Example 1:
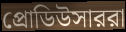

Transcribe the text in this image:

প্রোডিউসাররা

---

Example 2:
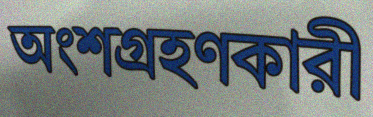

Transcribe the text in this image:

অংশগ্রহণকারী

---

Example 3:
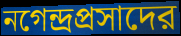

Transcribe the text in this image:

নগেন্দ্রপ্রসাদের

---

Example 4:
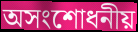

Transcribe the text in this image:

অসংশোধনীয়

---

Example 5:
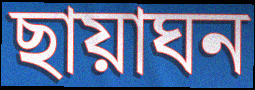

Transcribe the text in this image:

ছায়াঘন